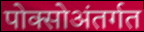
पोक्सोअंतर्गत